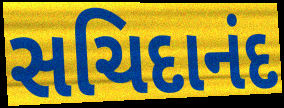
સચિદાનંદ